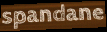
spandane